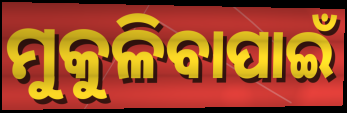
ମୁକୁଳିବାପାଇଁ